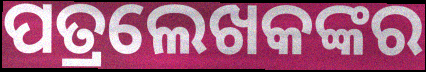
ପତ୍ରଲେଖକଙ୍କର